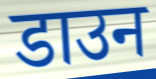
डाउन